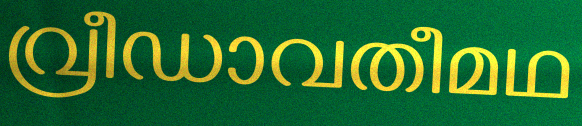
വ്രീഡാവതീമഥ